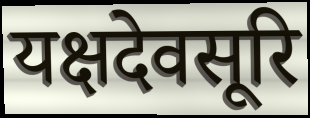
यक्षदेवसूरि